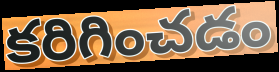
కరిగించడం